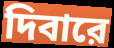
দিবারে